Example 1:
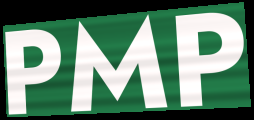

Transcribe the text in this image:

PMP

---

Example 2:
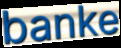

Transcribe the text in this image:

banke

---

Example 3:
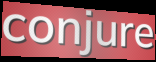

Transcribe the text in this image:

conjure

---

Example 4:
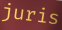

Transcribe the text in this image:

juris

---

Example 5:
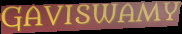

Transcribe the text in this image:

GAVISWAMY